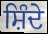
ਸ਼ਿੰਦੇ